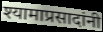
श्यामाप्रसादांनी